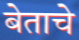
बेताचे